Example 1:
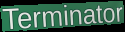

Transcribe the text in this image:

Terminator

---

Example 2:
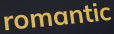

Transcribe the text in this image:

romantic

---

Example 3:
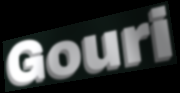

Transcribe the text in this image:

Gouri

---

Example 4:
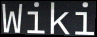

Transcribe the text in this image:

Wiki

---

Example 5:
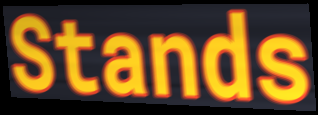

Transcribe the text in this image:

Stands